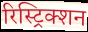
रिस्ट्रिक्शन